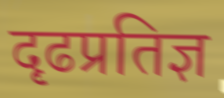
दृढप्रतिज्ञ